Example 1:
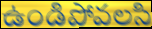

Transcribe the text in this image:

ఉండిపోవలసి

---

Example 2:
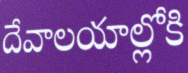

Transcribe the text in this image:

దేవాలయాల్లోకి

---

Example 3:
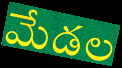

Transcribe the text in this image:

మేడల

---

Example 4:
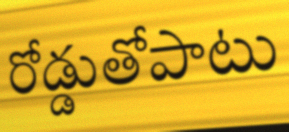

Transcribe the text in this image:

రోడ్డుతోపాటు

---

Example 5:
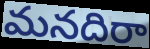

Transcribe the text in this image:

మనదిరా